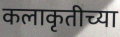
कलाकृतीच्या